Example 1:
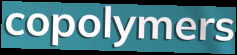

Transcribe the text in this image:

copolymers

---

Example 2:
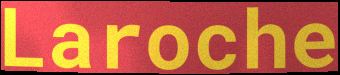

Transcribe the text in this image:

Laroche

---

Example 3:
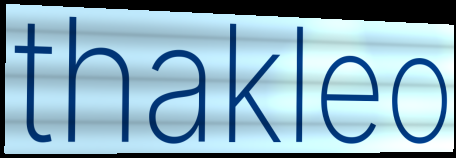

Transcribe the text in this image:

thakleo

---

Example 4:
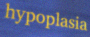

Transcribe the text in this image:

hypoplasia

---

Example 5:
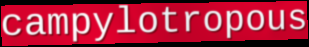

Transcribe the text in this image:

campylotropous